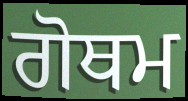
ਗੋਥਮ